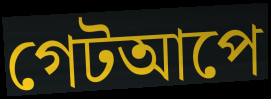
গেটআপে